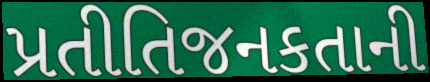
પ્રતીતિજનકતાની